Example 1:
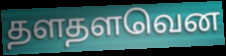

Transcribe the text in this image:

தளதளவென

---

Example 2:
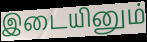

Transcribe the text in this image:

இடையினும்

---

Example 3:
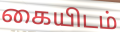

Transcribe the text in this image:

கையிடம்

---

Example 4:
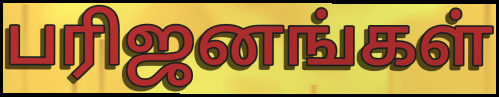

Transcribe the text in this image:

பரிஜனங்கள்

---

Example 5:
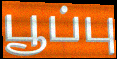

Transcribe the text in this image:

பூப்பு